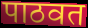
पाठवत